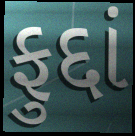
ફુદ્દાં